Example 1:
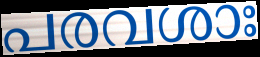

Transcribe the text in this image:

പരവശാഃ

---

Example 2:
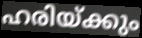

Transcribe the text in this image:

ഹരിയ്ക്കും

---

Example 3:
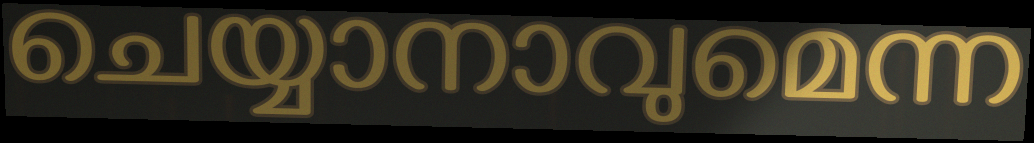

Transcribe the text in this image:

ചെയ്യാനാവുമെന്ന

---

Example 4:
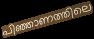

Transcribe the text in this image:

പിഞ്ഞാണത്തിലെ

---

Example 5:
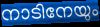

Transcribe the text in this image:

നാടിനേയും